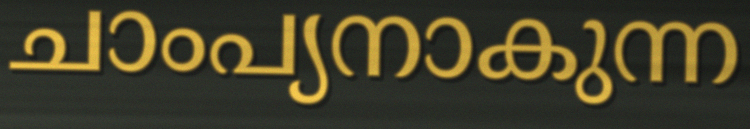
ചാംപ്യനാകുന്ന